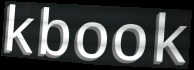
kbook